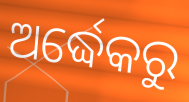
ଅର୍ଦ୍ଧେକରୁ